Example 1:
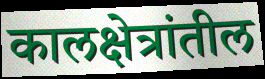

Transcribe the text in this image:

कालक्षेत्रांतील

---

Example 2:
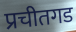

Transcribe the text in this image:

प्रचीतगड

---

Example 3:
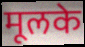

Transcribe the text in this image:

मूलके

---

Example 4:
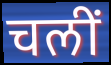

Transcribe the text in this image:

चलीं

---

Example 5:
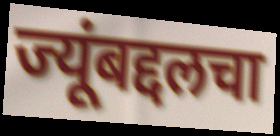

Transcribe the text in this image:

ज्यूंबद्दलचा